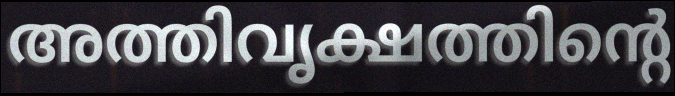
അത്തിവൃക്ഷത്തിന്റെ